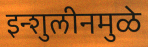
इन्शुलीनमुळे